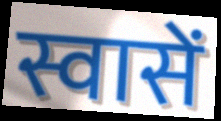
स्वासें